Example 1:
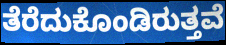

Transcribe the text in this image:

ತೆರೆದುಕೊಂಡಿರುತ್ತವೆ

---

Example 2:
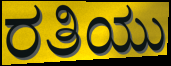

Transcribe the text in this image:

ರತಿಯು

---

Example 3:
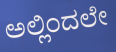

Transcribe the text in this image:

ಅಲ್ಲಿಂದಲೇ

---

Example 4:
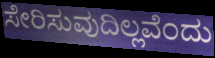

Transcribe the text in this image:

ಸೇರಿಸುವುದಿಲ್ಲವೆಂದು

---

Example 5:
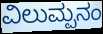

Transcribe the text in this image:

ವಿಲುಮ್ಪನಂ